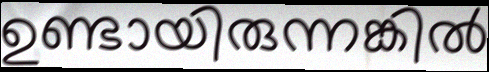
ഉണ്ടായിരുന്നങ്കിൽ